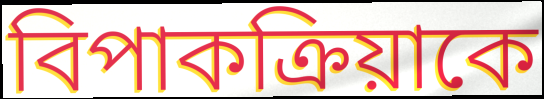
বিপাকক্রিয়াকে